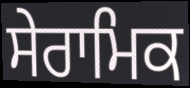
ਸੇਰਾਮਿਕ